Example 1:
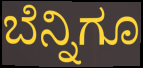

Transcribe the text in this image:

ಬೆನ್ನಿಗೂ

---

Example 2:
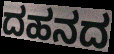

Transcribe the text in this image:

ದಹನದ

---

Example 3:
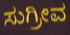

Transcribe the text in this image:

ಸುಗ್ರೀವ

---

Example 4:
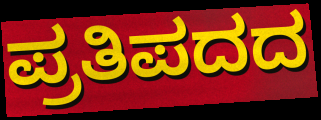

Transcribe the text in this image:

ಪ್ರತಿಪದದ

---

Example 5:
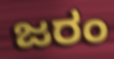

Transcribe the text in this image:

ಜರಂ